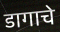
डागाचे